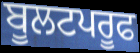
ਬੂਲਟਪਰੂਫ